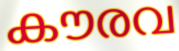
കൗരവ